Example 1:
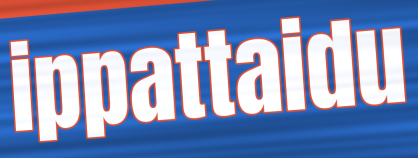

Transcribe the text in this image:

ippattaidu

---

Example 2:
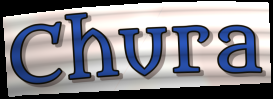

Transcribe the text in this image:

Chura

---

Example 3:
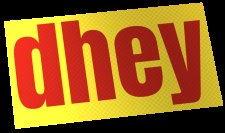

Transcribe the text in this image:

dhey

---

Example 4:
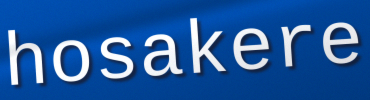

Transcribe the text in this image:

hosakere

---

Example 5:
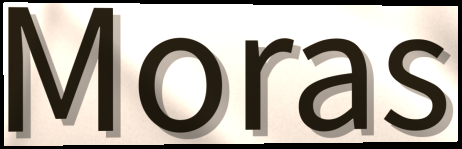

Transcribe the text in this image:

Moras